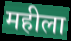
महीला